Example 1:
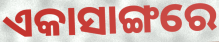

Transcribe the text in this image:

ଏକାସାଙ୍ଗରେ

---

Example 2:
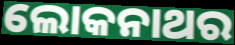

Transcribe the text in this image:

ଲୋକନାଥର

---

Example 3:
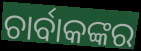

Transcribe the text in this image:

ଚାର୍ବାକଙ୍କର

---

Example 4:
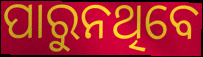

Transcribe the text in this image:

ପାରୁନଥିବେ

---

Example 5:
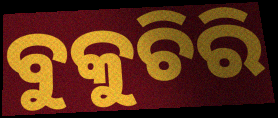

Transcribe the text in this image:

ବୁକୁଚିରି